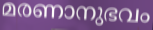
മരണാനുഭവം